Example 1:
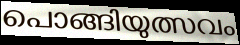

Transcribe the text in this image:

പൊങ്ങിയുത്സവം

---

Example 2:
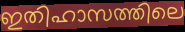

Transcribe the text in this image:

ഇതിഹാസത്തിലെ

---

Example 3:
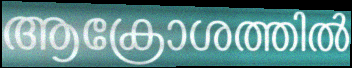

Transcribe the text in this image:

ആക്രോശത്തിൽ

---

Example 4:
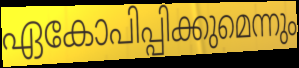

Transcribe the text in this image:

ഏകോപിപ്പിക്കുമെന്നും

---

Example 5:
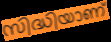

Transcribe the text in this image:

സിദ്ധിയാണ്